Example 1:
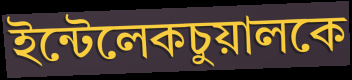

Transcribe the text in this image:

ইন্টেলেকচুয়ালকে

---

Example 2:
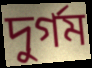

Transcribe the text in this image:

দুর্গম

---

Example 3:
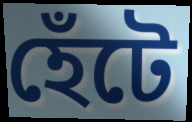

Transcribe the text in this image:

হেঁটে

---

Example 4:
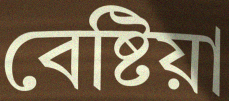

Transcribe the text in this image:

বেষ্টিয়া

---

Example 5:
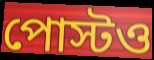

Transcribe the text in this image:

পোস্টও